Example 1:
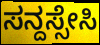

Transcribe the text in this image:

ಸನ್ದಸ್ಸೇಸಿ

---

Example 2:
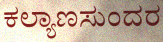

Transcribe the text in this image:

ಕಲ್ಯಾಣಸುಂದರ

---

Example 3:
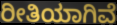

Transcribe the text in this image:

ರೀತಿಯಾಗಿವೆ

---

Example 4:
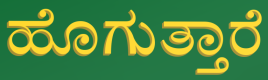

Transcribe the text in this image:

ಹೊಗುತ್ತಾರೆ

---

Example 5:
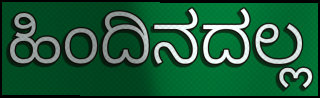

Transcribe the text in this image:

ಹಿಂದಿನದಲ್ಲ